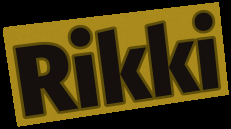
Rikki